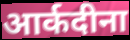
आर्कदीना